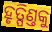
ହୃତ୍ପିଣ୍ତକୁ